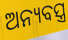
ଅନ୍ୟବସ୍ତ୍ର